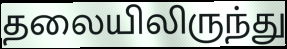
தலையிலிருந்து